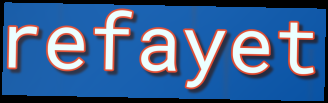
refayet